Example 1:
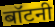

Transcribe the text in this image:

बॉटनी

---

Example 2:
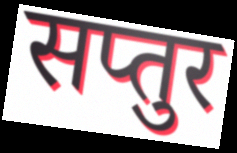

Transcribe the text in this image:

सप्तुर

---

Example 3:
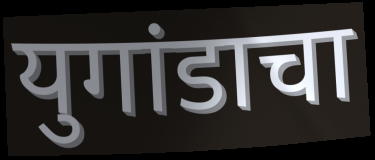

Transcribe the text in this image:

युगांडाचा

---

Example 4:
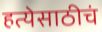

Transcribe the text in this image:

हत्येसाठीचं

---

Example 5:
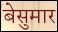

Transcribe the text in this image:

बेसुमार